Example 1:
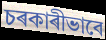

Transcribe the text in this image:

চৰকাৰীভাবে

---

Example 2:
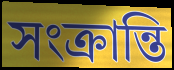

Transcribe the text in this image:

সংক্ৰান্তি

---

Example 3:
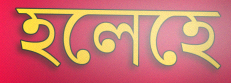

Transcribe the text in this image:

হলেহে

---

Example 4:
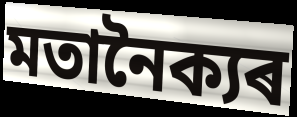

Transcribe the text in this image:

মতানৈক্যৰ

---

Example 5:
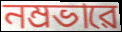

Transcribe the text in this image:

নম্ৰভাৱে